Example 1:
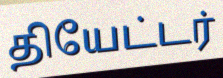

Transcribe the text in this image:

தியேட்டர்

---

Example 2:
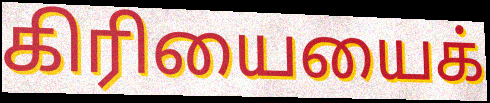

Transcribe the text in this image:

கிரியையைக்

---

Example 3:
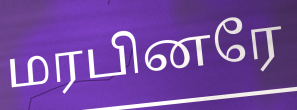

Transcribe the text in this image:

மரபினரே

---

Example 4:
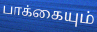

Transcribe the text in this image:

பாக்கையும்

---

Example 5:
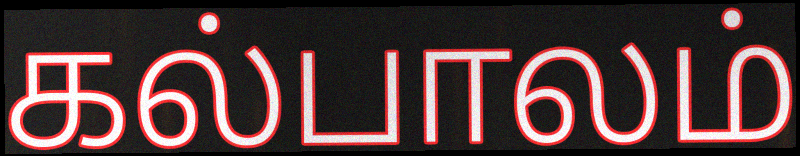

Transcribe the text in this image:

கல்பாலம்